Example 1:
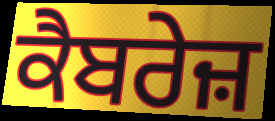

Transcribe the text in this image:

ਕੈਬਰੇਜ਼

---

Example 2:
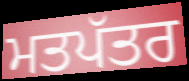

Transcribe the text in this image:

ਮਤਪੱਤਰ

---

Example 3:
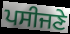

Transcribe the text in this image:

ਪਸੀਜਣੇ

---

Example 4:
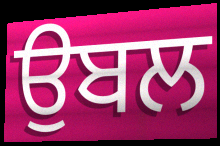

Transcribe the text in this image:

ਉਬਲ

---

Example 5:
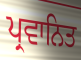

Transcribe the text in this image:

ਪ੍ਰਵਾਨਿਤ